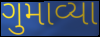
ગુમાવ્યા